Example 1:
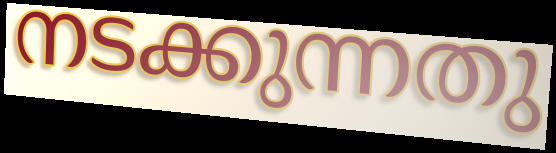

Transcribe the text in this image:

നടക്കുന്നതു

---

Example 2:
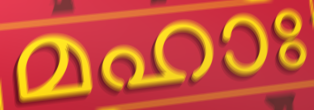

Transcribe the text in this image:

മഹാഃ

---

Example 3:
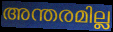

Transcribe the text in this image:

അന്തരമില്ല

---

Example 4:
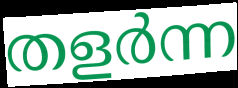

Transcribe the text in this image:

തളർന്ന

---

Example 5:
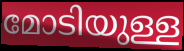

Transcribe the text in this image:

മോടിയുള്ള